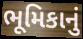
ભૂમિકાનું